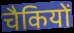
चैकियों